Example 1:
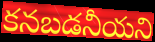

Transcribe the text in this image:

కనబడనీయని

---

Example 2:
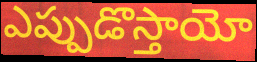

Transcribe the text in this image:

ఎప్పుడొస్తాయో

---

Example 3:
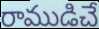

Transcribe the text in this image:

రాముడిచే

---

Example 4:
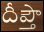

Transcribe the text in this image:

దీప్తౌ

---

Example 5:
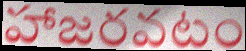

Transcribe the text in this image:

హాజరవటం